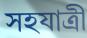
সহযাত্রী